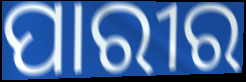
ପାରୀର